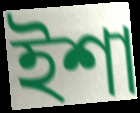
ইশা